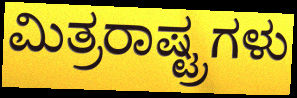
ಮಿತ್ರರಾಷ್ಟ್ರಗಳು